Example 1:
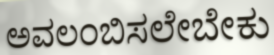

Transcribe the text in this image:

ಅವಲಂಬಿಸಲೇಬೇಕು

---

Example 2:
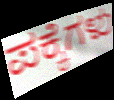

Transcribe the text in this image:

ಪಕ್ಕೆಗಳು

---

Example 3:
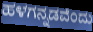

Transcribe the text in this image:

ಹಳಗನ್ನಡವೆಂದು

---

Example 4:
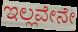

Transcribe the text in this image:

ಇಲ್ಲವೇನೇ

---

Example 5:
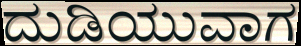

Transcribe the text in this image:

ದುಡಿಯುವಾಗ